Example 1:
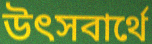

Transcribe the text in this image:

উৎসবার্থে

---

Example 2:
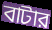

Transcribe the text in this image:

বাটার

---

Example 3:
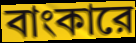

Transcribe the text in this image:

বাংকারে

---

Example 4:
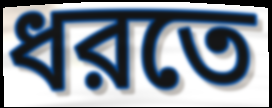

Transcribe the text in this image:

ধরতে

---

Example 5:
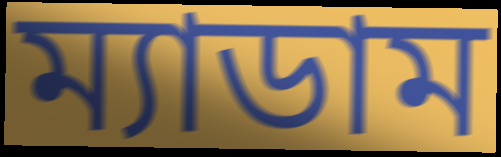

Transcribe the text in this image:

ম্যাডাম